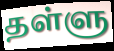
தள்ளு